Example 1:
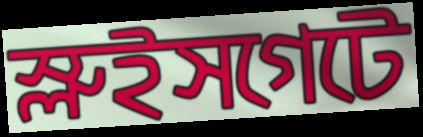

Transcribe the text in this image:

স্লুইসগেটে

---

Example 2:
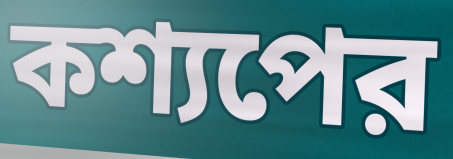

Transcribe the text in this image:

কশ্যপের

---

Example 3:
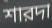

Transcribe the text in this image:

শারদা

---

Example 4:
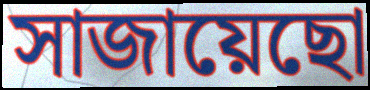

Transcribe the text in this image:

সাজায়েছো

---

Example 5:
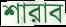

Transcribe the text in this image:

শারাব